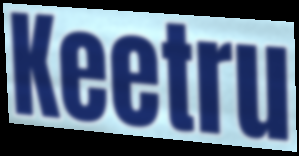
Keetru